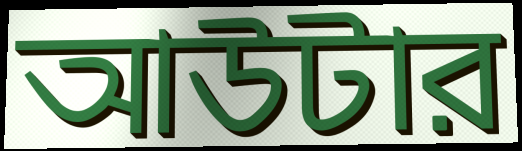
আউটার